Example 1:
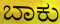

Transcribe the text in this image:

ಬಾಕು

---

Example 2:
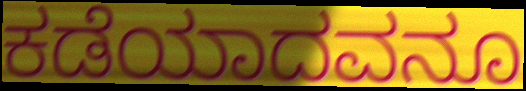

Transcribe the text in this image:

ಕಡೆಯಾದವನೂ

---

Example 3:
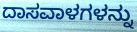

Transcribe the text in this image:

ದಾಸವಾಳಗಳನ್ನು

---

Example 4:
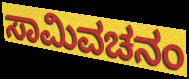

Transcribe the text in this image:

ಸಾಮಿವಚನಂ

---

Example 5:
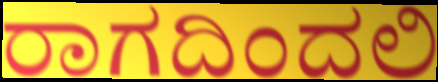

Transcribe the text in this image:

ರಾಗದಿಂದಲಿ